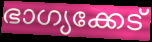
ഭാഗ്യക്കേട്